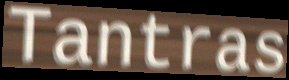
Tantras